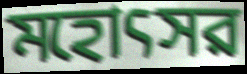
মহোৎসৱ